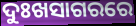
ଦୁଃଖସାଗରରେ